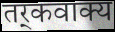
तर्कवाक्य